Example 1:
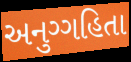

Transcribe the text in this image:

અનુગ્ગહિતા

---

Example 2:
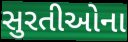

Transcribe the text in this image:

સુરતીઓના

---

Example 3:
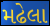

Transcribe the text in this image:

મઢેલા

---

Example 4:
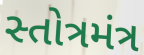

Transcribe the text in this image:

સ્તોત્રમંત્ર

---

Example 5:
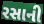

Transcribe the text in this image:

રસાની